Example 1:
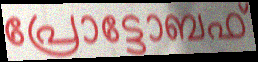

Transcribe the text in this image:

പ്രോട്ടോബഫ്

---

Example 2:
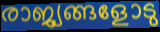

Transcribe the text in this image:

രാജ്യങ്ങളോടു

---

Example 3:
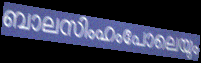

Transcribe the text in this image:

ബാലസിംഹംപോലെയും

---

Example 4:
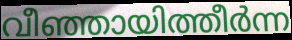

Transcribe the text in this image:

വീഞ്ഞായിത്തീർന്ന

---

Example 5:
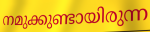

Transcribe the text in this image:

നമുക്കുണ്ടായിരുന്ന